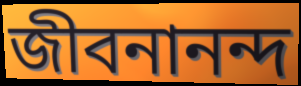
জীবনানন্দ